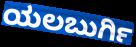
ಯಲಬುರ್ಗಿ